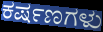
ಕರ್ಷಣಗಳು